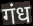
गंध